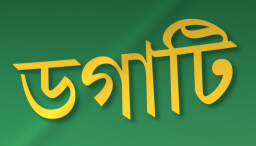
ডগাটি